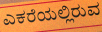
ಎಕರೆಯಲ್ಲಿರುವ